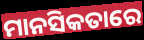
ମାନସିକତାରେ